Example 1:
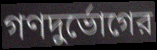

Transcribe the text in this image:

গণদুর্ভোগের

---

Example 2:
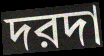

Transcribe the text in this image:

দরদা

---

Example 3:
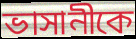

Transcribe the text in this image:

ভাসানীকে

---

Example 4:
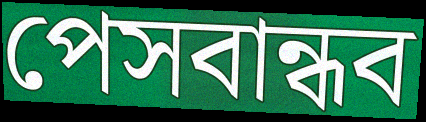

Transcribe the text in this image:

পেসবান্ধব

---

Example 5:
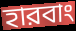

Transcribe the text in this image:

হারবাং